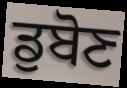
ਡੁਬੋਣ